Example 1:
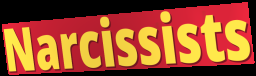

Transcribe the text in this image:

Narcissists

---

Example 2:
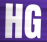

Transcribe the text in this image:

HG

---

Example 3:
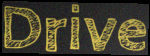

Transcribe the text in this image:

Drive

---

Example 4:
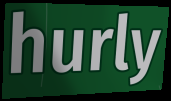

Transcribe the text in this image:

hurly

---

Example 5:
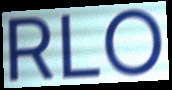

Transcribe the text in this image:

RLO